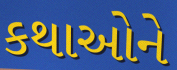
કથાઓને